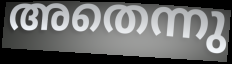
അതെന്നു